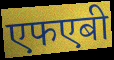
एफएबी